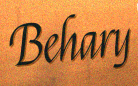
Behary